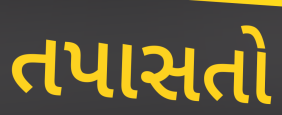
તપાસતો